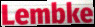
Lembke